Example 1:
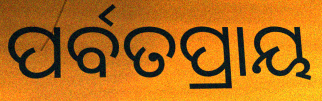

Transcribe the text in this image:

ପର୍ବତପ୍ରାୟ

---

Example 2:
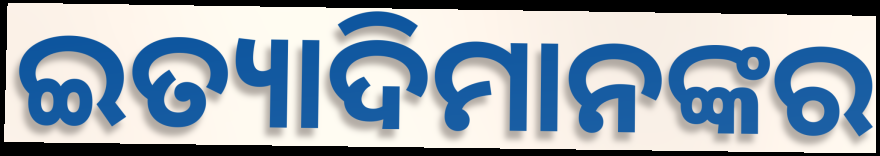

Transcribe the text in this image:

ଇତ୍ୟାଦିମାନଙ୍କର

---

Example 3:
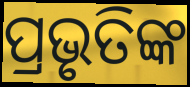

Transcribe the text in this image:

ପ୍ରଭୃତିଙ୍କ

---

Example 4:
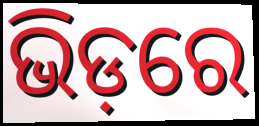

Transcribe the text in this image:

ଭିଡ଼ରେ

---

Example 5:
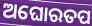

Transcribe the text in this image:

ଅଘୋରତପ